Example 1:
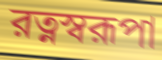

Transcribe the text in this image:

রত্নস্বরূপা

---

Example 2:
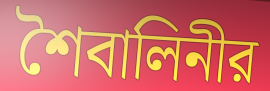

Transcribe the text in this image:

শৈবালিনীর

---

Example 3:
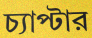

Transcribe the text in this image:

চ্যাপ্টার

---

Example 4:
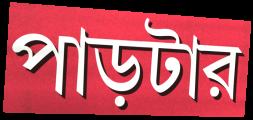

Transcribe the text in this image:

পাড়টার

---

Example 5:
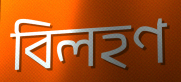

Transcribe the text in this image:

বিলহণ